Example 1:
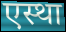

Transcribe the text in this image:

एस्था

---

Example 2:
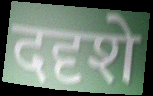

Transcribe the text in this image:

ददृशे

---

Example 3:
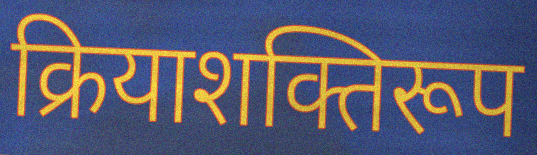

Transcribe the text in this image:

क्रियाशक्तिरूप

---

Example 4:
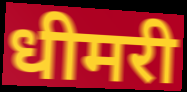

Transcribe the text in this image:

धीमरी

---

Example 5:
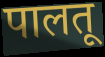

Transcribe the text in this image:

पालतू